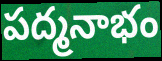
పద్మనాభం